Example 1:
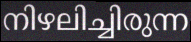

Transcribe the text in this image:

നിഴലിച്ചിരുന്ന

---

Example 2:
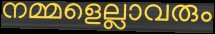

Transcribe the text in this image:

നമ്മളെല്ലാവരും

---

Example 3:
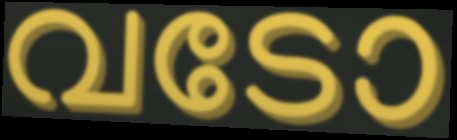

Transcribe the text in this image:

വടോ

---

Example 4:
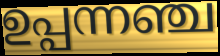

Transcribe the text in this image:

ഉപ്പന്നഞ്ച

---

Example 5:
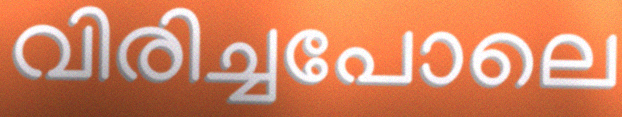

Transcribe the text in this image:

വിരിച്ചപോലെ